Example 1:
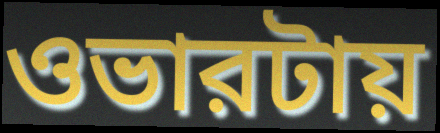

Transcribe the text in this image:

ওভারটায়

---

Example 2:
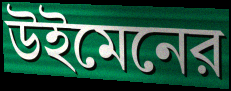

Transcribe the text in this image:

উইমেনের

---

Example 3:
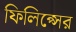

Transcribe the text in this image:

ফিলিপ্সের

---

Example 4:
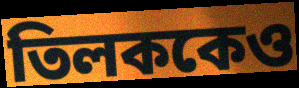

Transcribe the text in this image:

তিলককেও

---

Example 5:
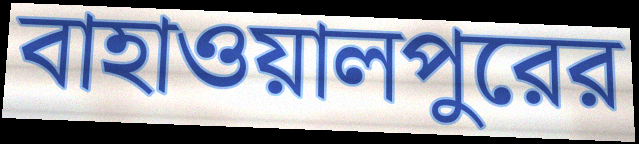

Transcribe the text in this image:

বাহাওয়ালপুরের